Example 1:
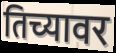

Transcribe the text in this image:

तिच्यावर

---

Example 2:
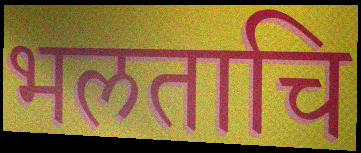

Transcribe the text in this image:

भलताचि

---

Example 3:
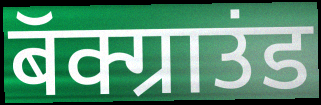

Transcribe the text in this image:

बॅक्ग्राउंड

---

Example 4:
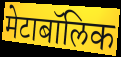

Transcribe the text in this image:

मेटाबॉलिक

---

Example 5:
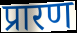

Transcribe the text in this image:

प्रारण